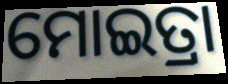
ମୋଇତ୍ରା